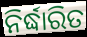
ନିର୍ଦ୍ଧାରିତ